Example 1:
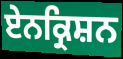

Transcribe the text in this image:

ਏਨਕ੍ਰਿਸ਼ਨ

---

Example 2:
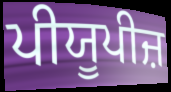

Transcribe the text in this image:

ਪੀਯੂਪੀਜ਼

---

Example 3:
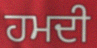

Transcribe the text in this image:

ਹਮਦੀ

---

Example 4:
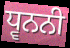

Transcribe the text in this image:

ਧ੍ਵਨਨੀ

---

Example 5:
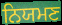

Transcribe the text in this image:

ਨਿਯਮਣ